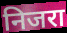
निजरा